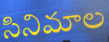
సినిమాల